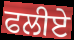
ਫਲੀਏ